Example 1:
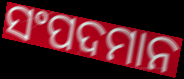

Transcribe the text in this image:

ସଂପଦମାନ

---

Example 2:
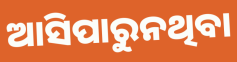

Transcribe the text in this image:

ଆସିପାରୁନଥିବା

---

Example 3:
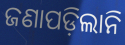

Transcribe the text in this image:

ଜଣାପଡ଼ିଲାନି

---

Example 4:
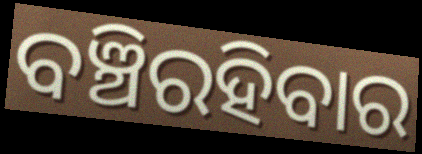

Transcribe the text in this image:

ବଞ୍ଚିରହିବାର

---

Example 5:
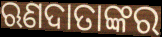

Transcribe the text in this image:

ଋଣଦାତାଙ୍କର